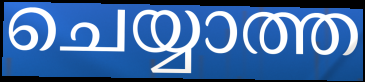
ചെയ്യാത്ത